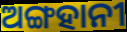
ଅଙ୍ଗହାନୀ